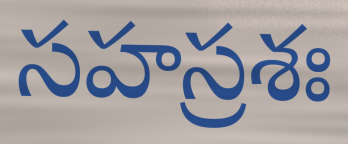
సహస్రశః